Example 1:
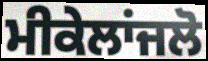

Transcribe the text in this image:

ਮੀਕੇਲਾਂਜਲੋ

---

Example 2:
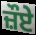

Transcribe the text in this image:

ਜ਼ੌਏ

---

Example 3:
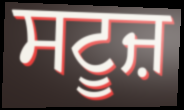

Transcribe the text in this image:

ਸਟੂਜ਼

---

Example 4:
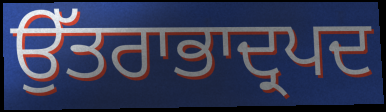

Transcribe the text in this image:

ਉੱਤਰਾਭਾਦ੍ਰਪਦ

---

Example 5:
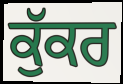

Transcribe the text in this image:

ਕੁੱਕਰ